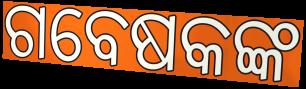
ଗବେଷକଙ୍କ